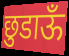
छुडाऊँ